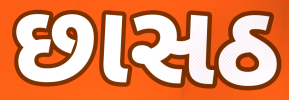
છાસઠ